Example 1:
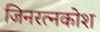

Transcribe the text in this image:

जिनरत्नकोश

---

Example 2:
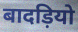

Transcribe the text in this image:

बादड़ियो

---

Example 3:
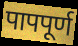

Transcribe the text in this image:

पापपूर्ण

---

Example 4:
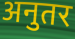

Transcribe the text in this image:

अनुतर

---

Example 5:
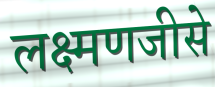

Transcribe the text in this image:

लक्ष्मणजीसे